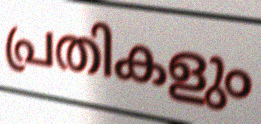
പ്രതികളും